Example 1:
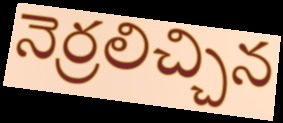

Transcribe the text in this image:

నెర్రలిచ్చిన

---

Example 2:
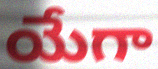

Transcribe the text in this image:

యేగా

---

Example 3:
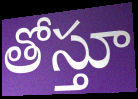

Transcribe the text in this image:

తోస్తూ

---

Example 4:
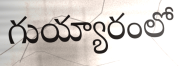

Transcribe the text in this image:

గుయ్యారంలో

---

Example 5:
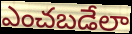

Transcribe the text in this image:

ఎంచబడేలా